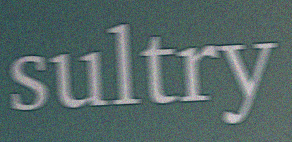
sultry